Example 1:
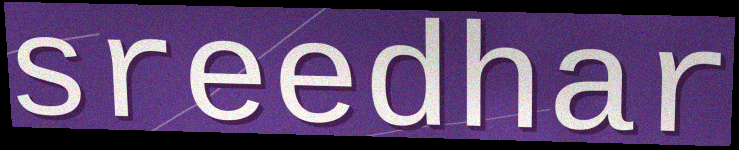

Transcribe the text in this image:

sreedhar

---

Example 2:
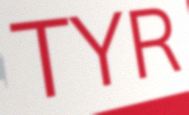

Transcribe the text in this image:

TYR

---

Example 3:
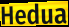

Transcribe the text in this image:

Hedua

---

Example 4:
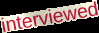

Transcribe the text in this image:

interviewed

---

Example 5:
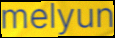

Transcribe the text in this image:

melyun